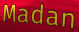
Madan